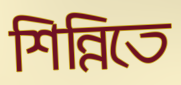
শিন্নিতে